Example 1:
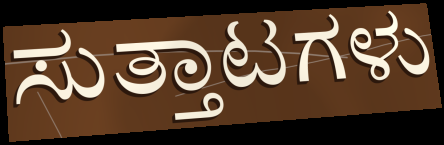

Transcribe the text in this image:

ಸುತ್ತಾಟಗಳು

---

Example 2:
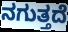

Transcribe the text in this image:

ನಗುತ್ತದೆ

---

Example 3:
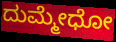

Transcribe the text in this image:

ದುಮ್ಮೇಧೋ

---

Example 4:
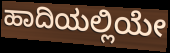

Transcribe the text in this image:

ಹಾದಿಯಲ್ಲಿಯೇ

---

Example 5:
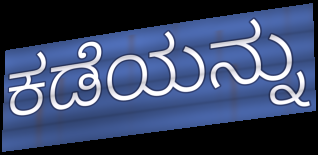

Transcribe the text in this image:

ಕಡೆಯನ್ನು